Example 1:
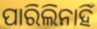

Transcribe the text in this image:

ପାରିଲିନାହିଁ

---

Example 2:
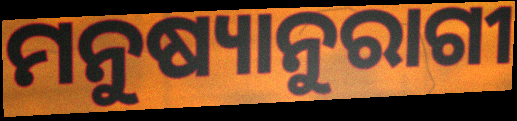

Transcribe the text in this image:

ମନୁଷ୍ୟାନୁରାଗୀ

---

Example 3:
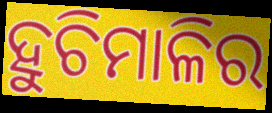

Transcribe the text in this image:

ହୁଚିମାଳିର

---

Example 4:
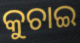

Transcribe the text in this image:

କୁଚାଇ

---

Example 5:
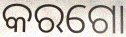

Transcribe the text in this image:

କରଗୋ